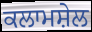
ਕਲਾਮਸ਼ੇਲ